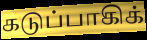
கடுப்பாகிக்